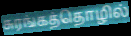
சுரங்கத்தொழில்